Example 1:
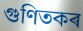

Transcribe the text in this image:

গুণিতকৰ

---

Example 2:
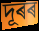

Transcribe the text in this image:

দূৰৰ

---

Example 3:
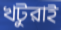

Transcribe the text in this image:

খটুৱাই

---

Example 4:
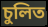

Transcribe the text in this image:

চুলিত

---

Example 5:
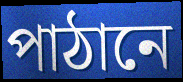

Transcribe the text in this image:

পাঠানে